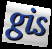
gis